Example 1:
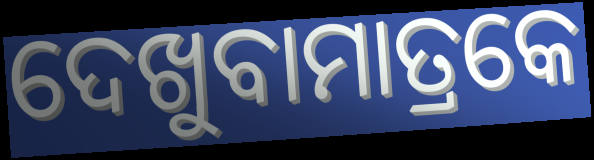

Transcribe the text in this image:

ଦେଖୁବାମାତ୍ରକେ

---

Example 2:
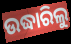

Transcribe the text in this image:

ଉଦ୍ଧାରିଲୁ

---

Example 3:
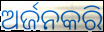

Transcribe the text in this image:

ଅର୍ଜନକରି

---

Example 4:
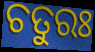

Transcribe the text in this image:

ଚତୁରଃ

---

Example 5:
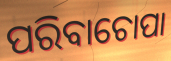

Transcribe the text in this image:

ପରିବାଚୋପା